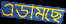
এডামছে